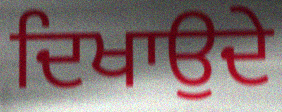
ਦਿਖਾਉਦੇ